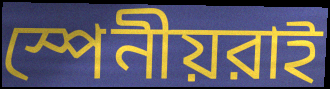
স্পেনীয়রাই